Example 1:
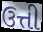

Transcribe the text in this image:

ઉત્તી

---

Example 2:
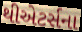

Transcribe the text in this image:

થીએટર્સના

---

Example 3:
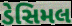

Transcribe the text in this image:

ડેસિમલ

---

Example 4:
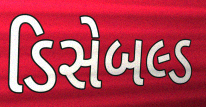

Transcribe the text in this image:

ડિસેબલ્ડ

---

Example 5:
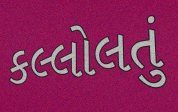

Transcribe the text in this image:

કલ્લોલતું